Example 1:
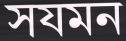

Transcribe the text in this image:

সযমন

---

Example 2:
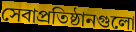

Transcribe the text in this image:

সেবাপ্রতিষ্ঠানগুলো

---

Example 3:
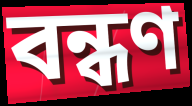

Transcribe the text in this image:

বন্ধণ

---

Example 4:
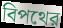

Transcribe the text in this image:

বিপথের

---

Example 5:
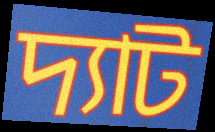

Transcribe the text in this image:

দ্যাট